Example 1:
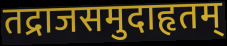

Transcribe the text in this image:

तद्राजसमुदाहृतम्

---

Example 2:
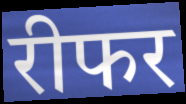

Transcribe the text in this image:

रीफर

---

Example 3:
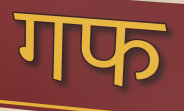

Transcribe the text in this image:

गफ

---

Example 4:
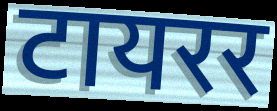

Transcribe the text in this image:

टायरर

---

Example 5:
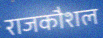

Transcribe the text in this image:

राजकौशल